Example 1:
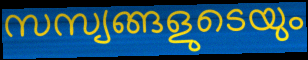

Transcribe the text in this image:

സസ്യങ്ങളുടെയും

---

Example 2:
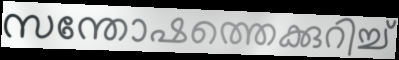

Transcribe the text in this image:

സന്തോഷത്തെക്കുറിച്ച്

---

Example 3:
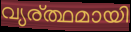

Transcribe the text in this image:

വ്യര്ത്ഥമായി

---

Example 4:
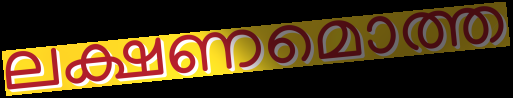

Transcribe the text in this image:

ലക്ഷണമൊത്ത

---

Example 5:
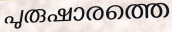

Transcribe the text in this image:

പുരുഷാരത്തെ